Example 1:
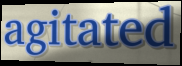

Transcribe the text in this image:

agitated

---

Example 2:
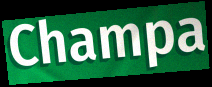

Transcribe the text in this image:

Champa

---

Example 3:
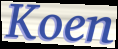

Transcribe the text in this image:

Koen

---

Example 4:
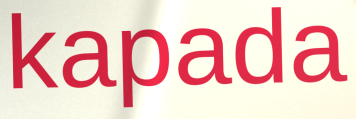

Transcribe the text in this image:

kapada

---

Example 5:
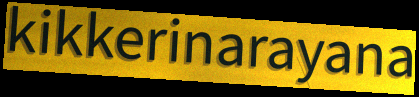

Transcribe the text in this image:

kikkerinarayana